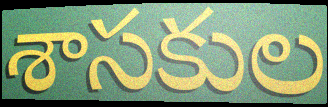
శాసకుల